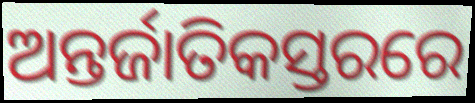
ଅନ୍ତର୍ଜାତିକସ୍ତରରେ